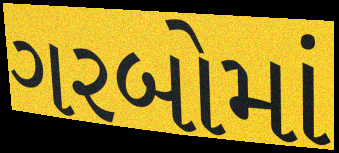
ગરબોમાં